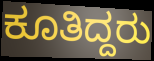
ಕೂತಿದ್ದರು